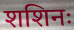
शशिनः